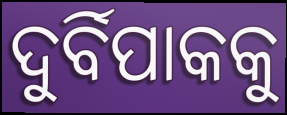
ଦୁର୍ବିପାକକୁ